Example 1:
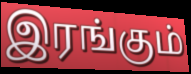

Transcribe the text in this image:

இரங்கும்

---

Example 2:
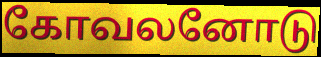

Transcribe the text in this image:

கோவலனோடு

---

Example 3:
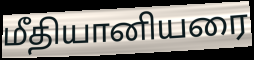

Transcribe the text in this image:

மீதியானியரை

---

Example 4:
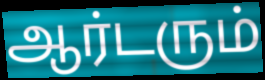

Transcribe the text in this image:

ஆர்டரும்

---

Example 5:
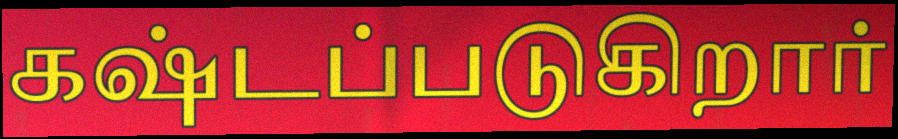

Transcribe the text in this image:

கஷ்டப்படுகிறார்